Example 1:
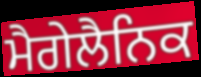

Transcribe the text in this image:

ਮੈਗੇਲੈਨਿਕ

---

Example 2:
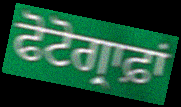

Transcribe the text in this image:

ਫੋਟੋਗ੍ਰਾਫ਼ਾਂ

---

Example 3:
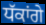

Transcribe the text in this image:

ਧੱਕਾਂਗੇ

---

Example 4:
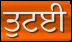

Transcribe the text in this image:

ਤੁਟਈ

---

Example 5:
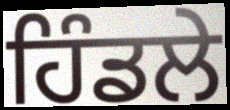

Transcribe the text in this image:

ਹਿੰਡਲੇ